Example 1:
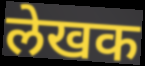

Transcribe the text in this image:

लेखक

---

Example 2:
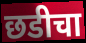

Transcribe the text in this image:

छडीचा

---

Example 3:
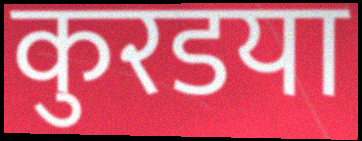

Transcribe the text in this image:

कुरडया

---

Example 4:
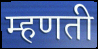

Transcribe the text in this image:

म्हणती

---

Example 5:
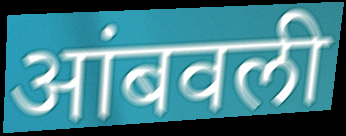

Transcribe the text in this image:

आंबवली